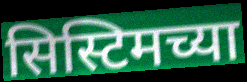
सिस्टिमच्या